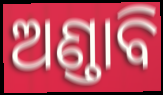
ଅଣ୍ଡାବି